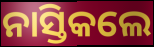
ନାସ୍ତିକଲେ